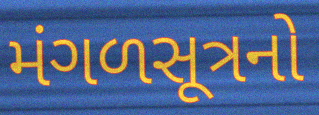
મંગળસૂત્રનો